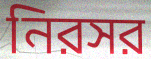
নিরসর